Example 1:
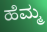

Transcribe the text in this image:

ಹೆಮ್ಮ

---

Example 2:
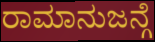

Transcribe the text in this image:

ರಾಮಾನುಜನ್ಗೆ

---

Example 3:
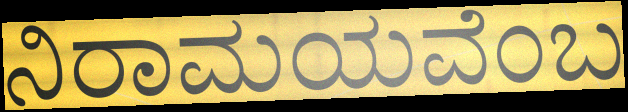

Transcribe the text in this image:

ನಿರಾಮಯವೆಂಬ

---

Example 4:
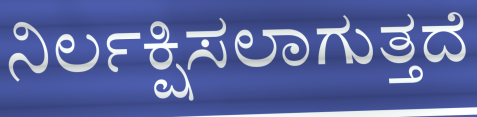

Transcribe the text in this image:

ನಿರ್ಲಕ್ಷಿಸಲಾಗುತ್ತದೆ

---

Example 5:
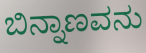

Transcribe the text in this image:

ಬಿನ್ನಾಣವನು